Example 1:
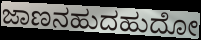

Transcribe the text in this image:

ಜಾಣನಹುದಹುದೋ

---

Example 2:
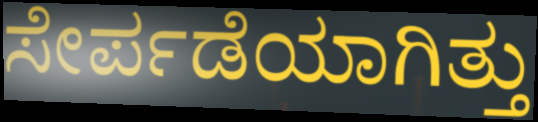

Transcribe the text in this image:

ಸೇರ್ಪಡೆಯಾಗಿತ್ತು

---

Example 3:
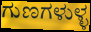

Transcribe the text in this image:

ಗುಣಗಳುಳ್ಳ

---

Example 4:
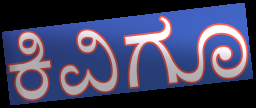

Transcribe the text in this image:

ಕಿವಿಗೂ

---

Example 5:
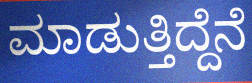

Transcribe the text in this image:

ಮಾಡುತ್ತಿದ್ದೆನೆ